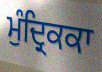
ਮੁੰਦ੍ਰਿਕਕਾ